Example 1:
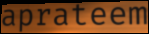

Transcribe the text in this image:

aprateem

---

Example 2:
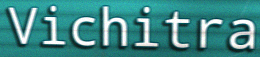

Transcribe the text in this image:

Vichitra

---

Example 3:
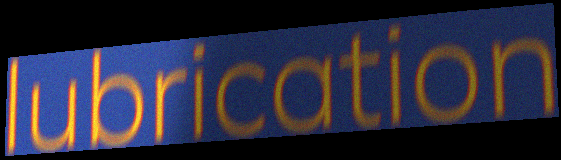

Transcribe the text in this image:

lubrication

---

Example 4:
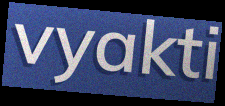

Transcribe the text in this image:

vyakti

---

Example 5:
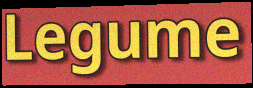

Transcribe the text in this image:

Legume